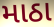
માઠા